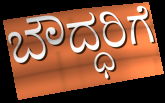
ಬೌದ್ಧರಿಗೆ